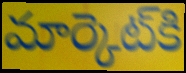
మార్కెట్‌కి